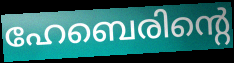
ഹേബെരിന്റെ